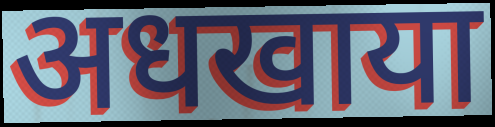
अधखाया